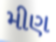
મીણ